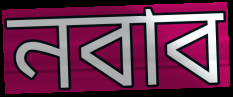
নবাব